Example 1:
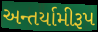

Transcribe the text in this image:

અન્તર્યામીરૂપ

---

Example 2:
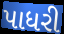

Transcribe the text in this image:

પાધરી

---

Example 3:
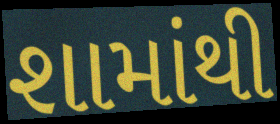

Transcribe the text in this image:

શામાંથી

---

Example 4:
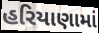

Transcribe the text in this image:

હરિયાણામાં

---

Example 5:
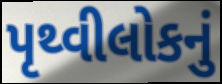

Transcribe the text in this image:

પૃથ્વીલોકનું